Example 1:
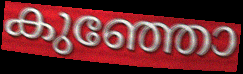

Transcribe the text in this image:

കുഞ്ഞോ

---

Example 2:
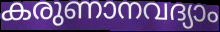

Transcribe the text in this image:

കരുണാനവദ്യാം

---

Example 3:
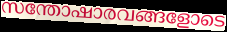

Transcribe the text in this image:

സന്തോഷാരവങ്ങളോടെ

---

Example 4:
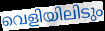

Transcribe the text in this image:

വെളിയിലിടും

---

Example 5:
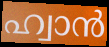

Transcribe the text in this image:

ഹ്വാൻ